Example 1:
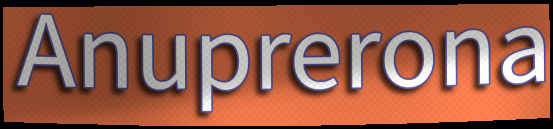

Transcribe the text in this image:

Anuprerona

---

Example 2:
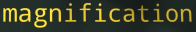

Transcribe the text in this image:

magnification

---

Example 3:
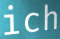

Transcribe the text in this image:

ich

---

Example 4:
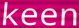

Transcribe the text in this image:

keen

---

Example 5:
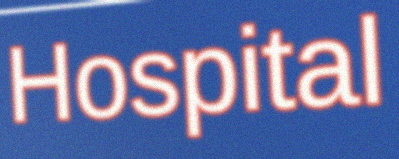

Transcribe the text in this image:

Hospital